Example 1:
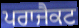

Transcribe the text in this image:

ਪਰਾਜੈਕਟ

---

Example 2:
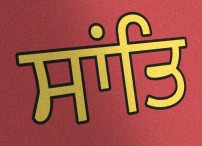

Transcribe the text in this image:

ਸਾਂਤਿ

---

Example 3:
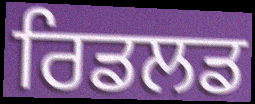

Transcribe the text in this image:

ਰਿਡਲਡ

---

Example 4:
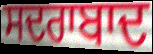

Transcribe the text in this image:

ਸਦਰਾਬਾਦ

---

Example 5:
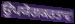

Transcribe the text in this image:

ਉਪਯੋਗਕਰਤਾਵਾਂ